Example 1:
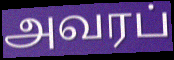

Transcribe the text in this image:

அவரப்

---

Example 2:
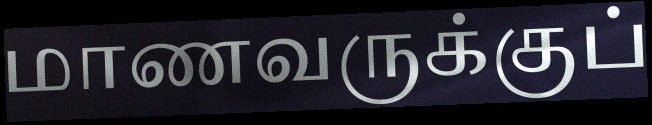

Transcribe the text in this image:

மாணவருக்குப்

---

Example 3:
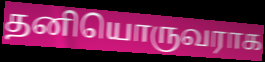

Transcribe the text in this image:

தனியொருவராக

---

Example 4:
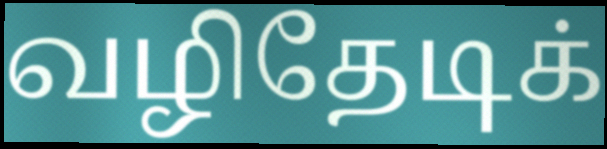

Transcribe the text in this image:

வழிதேடிக்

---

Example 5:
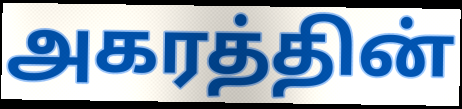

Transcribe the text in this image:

அகரத்தின்